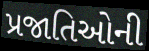
પ્રજાતિઓની